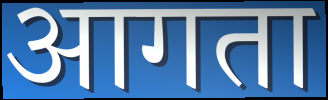
आगता